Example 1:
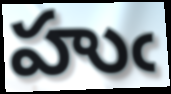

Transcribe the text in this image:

హుఁ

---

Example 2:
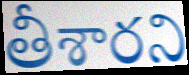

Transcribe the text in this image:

తీశారని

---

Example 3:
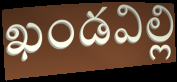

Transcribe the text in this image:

ఖండవిల్లి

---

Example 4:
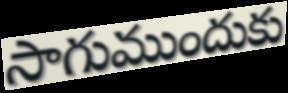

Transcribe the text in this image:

సాగుముందుకు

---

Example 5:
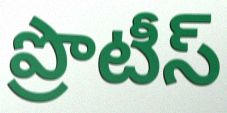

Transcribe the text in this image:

ప్రొటీస్